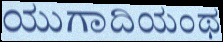
ಯುಗಾದಿಯಂಥ